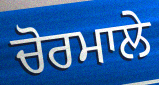
ਚੋਰਮਾਲੇ